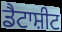
ਡੈਟਾਸ਼ੀਟ